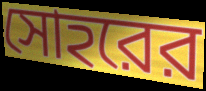
সোহরের